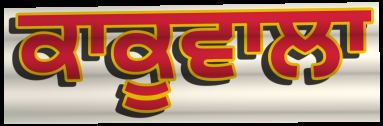
ਕਾਕੂਵਾਲਾ